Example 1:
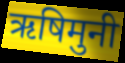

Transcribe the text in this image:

ऋषिमुनी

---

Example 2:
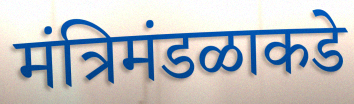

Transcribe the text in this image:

मंत्रिमंडळाकडे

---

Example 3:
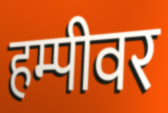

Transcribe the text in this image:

हम्पीवर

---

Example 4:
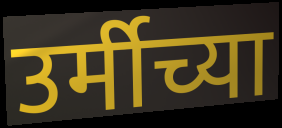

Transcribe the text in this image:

उर्मीच्या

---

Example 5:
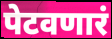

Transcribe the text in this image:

पेटवणारं